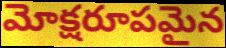
మోక్షరూపమైన